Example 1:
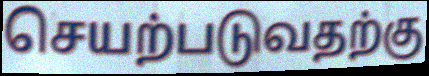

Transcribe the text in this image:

செயற்படுவதற்கு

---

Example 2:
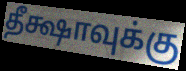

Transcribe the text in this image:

தீக்ஷாவுக்கு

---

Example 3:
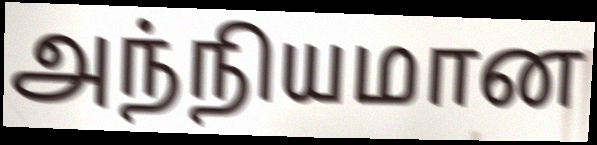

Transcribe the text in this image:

அந்நியமான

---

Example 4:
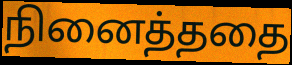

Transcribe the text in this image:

நினைத்ததை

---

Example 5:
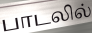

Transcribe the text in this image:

பாடலில்